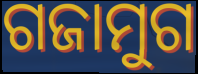
ଗଜାମୁଗ